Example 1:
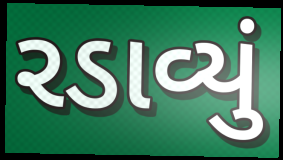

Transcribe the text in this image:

રડાવ્યું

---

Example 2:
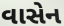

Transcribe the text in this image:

વાસેન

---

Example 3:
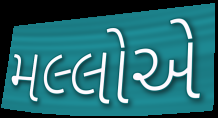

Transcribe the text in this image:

મલ્લોએ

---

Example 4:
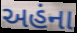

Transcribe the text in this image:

અહંના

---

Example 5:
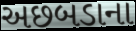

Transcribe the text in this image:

અછબડાના